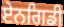
ਏਨਗਿਡੀ